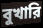
বুখারি